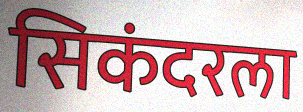
सिकंदरला